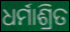
ଧର୍ମାଶ୍ରିତ